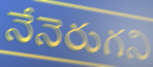
నేనెరుగని